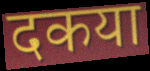
दकया